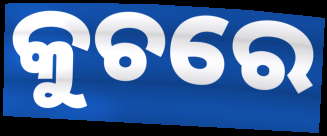
କୁଚରେ